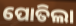
ପୋତିଲା